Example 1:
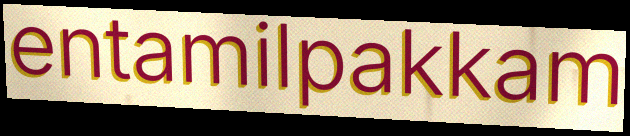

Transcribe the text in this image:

entamilpakkam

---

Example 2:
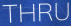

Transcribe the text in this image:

THRU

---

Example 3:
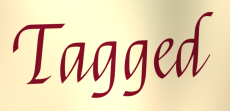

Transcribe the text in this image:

Tagged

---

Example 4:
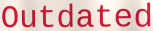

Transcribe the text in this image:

Outdated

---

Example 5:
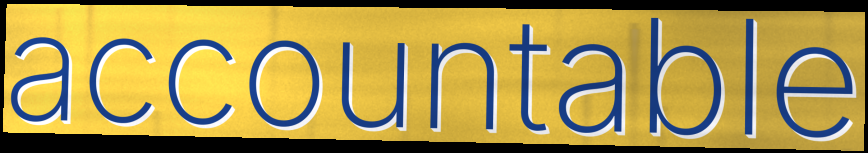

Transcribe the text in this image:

accountable